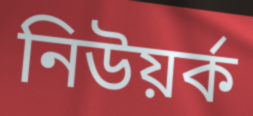
নিউয়ৰ্ক